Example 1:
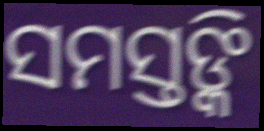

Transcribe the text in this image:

ସମସ୍ତଙ୍କି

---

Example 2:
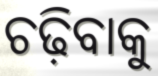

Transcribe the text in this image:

ଚଢ଼ିବାକୁ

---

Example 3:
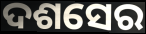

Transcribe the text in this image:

ଦଶସେର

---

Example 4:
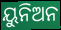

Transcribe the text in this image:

ୟୁନିଅନ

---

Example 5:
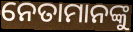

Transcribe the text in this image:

ନେତାମାନଙ୍କୁ